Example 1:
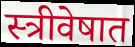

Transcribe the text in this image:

स्त्रीवेषात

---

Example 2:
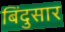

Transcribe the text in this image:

बिंदुसार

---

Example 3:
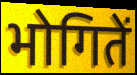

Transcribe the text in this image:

भोगितें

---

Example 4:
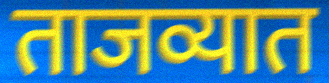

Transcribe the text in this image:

ताजव्यात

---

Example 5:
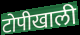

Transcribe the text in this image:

टोपीखाली